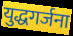
युद्धगर्जना